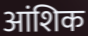
आंशिक